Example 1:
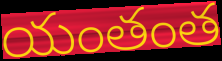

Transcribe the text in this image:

యంతంత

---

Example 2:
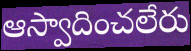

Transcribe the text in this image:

ఆస్వాదించలేరు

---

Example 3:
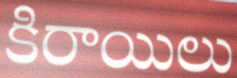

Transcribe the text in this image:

కిరాయిలు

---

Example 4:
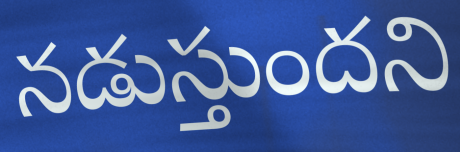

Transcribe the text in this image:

నడుస్తుందని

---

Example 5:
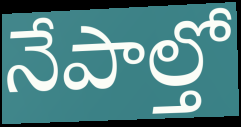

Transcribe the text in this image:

నేపాల్తో